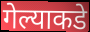
गेल्याकडे